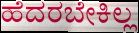
ಹೆದರಬೇಕಿಲ್ಲ